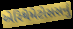
એરિથેમેટોસસનું